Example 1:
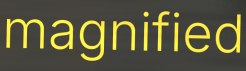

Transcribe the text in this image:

magnified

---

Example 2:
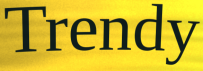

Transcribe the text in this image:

Trendy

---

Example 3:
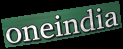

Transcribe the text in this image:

oneindia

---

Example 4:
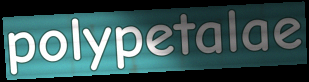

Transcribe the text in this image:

polypetalae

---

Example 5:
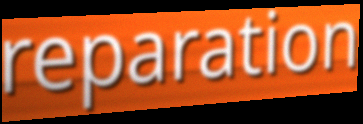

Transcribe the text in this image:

reparation